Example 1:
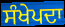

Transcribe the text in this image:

ਸੰਖੇਪਦਾ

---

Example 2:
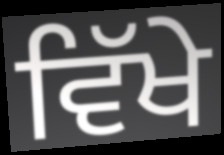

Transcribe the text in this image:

ਵਿੱਖੇ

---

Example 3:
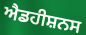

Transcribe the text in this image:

ਐਡਹੀਸ਼ਨਸ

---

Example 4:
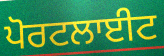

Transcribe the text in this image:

ਪੋਰਟਲਾਈਟ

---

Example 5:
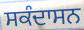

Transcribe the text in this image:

ਸਕੰਦਾਸਨ